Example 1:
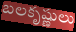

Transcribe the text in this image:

బలకృష్ణులు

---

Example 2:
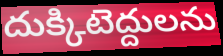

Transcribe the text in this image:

దుక్కిటెద్దులను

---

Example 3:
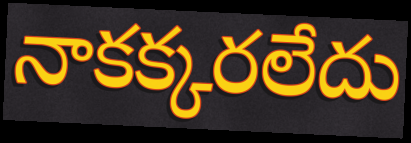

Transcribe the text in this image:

నాకక్కరలేదు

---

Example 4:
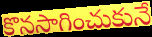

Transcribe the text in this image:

కొనసాగించుకునే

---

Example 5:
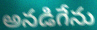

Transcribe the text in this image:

అనడిగేను